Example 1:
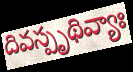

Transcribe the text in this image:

దివస్పృథివ్యాః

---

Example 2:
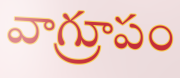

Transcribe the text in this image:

వాగ్రూపం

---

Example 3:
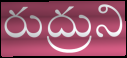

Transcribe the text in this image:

రుద్రుని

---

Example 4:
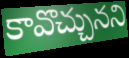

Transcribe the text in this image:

కావొచ్చునని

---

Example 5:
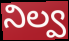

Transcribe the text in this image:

నిల్వ